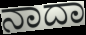
ನಾದಾ